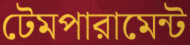
টেমপারামেন্ট